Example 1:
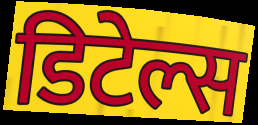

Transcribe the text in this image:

डिटेल्स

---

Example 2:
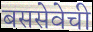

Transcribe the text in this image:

बससेवेची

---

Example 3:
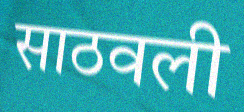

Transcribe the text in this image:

साठवली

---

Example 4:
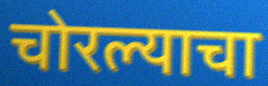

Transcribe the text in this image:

चोरल्याचा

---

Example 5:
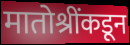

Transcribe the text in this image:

मातोश्रींकडून